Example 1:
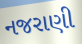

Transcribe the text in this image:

નજરાણી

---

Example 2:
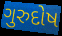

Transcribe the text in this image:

ગુરુદોષ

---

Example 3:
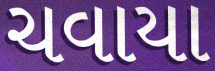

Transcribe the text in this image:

ચવાયા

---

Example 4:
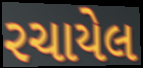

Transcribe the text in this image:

રચાયેલ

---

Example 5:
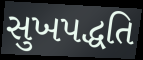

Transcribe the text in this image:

સુખપદ્ધતિ